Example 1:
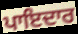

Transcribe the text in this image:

ਪਾਇਦਾਰ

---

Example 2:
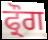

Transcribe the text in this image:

ਫ੍ਰੌਗ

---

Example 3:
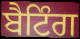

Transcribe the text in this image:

ਬੈਟਿੰਗ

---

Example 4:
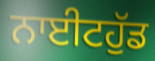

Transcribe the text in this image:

ਨਾਈਟਹੁੱਡ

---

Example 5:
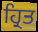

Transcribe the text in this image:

ਹ੍ਰਿਤ